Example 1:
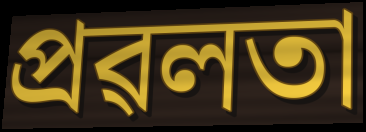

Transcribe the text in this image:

প্ৰৱলতা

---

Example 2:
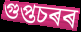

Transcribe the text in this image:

গুপ্তচৰৰ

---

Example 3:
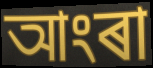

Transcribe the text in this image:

আংৰা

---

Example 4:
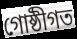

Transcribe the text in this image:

গোষ্ঠীগত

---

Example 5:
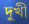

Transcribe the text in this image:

দুখী